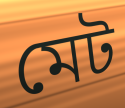
মেট